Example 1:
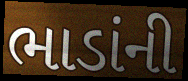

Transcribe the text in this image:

ભાડાંની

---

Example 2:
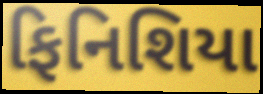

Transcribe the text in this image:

ફિનિશિયા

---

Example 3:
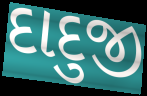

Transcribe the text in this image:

દાદુજી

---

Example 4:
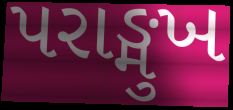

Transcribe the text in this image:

પરાઙ્મુખ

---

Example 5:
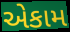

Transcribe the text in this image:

એકામ